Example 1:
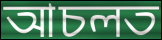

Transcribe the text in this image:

আচলত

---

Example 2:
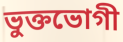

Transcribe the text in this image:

ভুক্তভোগী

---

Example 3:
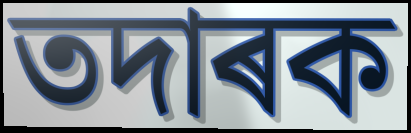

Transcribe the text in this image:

তদাৰক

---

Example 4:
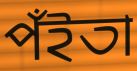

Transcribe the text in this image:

পঁইতা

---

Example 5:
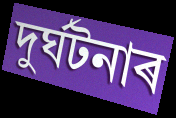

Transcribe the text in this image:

দুৰ্ঘটনাৰ